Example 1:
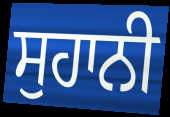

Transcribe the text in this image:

ਸੁਹਾਨੀ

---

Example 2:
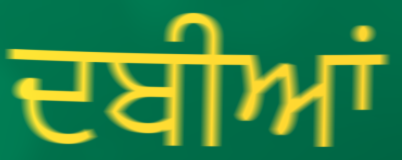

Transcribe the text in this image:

ਦਬੀਆਂ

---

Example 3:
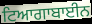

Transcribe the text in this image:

ਟਿਆਗਾਬਾਈਨ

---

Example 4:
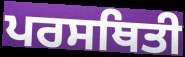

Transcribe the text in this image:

ਪਰਸਥਿਤੀ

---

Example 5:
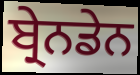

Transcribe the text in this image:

ਬ੍ਰੇਨਡੇਨ